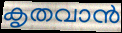
കൃതവാൻ